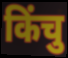
किंचु